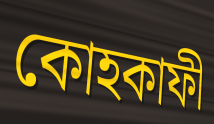
কোহকাফী